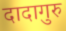
दादागुरु